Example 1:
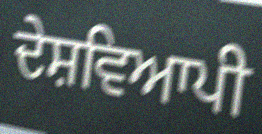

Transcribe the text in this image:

ਦੇਸ਼ਵਿਆਪੀ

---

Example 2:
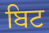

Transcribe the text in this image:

ਬਿਟ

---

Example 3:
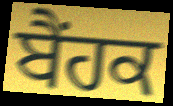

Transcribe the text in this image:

ਬੈਂਹਕ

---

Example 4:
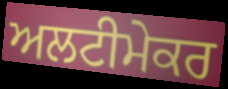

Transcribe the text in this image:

ਅਲਟੀਮੇਕਰ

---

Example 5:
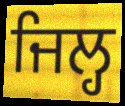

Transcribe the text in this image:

ਜਿਲ੍ਹ